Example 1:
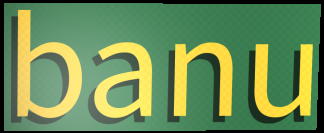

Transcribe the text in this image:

banu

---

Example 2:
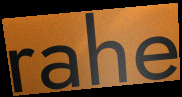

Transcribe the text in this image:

rahe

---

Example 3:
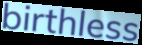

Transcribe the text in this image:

birthless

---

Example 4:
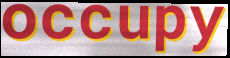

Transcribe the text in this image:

occupy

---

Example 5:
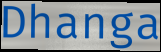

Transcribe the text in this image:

Dhanga